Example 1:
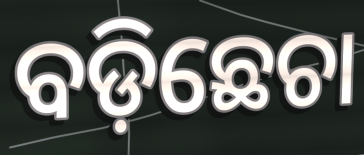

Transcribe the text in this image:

ବଡ଼ିଛେଚା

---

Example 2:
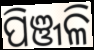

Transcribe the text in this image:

ପିଞ୍ଜଳି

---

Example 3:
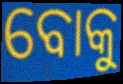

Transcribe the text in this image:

ବୋକୁ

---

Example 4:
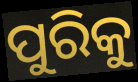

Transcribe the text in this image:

ପୁରିକୁ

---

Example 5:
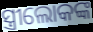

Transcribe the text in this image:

ସ୍ତ୍ରୀଲୋକଙ୍କ